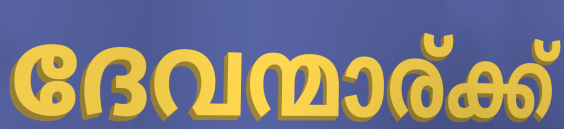
ദേവന്മാര്ക്ക്